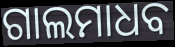
ଗାଲମାଧବ